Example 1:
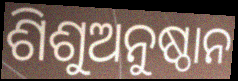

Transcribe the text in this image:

ଶିଶୁଅନୁଷ୍ଠାନ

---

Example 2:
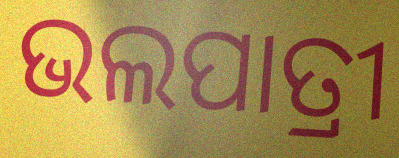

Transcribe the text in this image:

ଭଲପାତ୍ରୀ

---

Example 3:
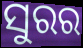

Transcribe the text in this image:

ସୁରର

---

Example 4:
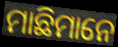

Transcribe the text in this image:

ମାଛିମାନେ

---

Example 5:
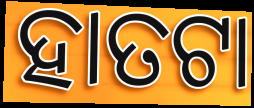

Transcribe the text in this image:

ହାତଟା